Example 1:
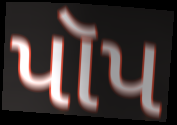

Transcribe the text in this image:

પૉપ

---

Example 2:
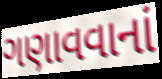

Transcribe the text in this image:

ગણાવવાનાં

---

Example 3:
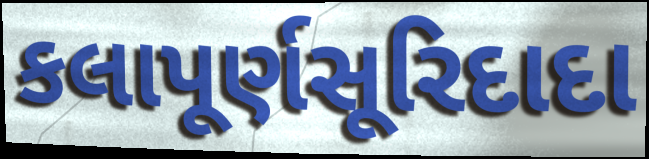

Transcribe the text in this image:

કલાપૂર્ણસૂરિદાદા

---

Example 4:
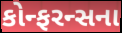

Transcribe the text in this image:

કોન્ફરન્સના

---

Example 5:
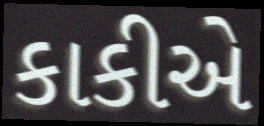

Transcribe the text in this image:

કાકીએ